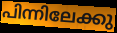
പിന്നിലേക്കു